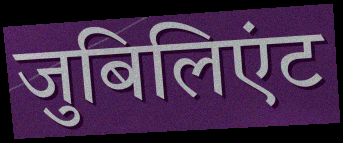
जुबिलिएंट